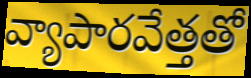
వ్యాపారవేత్తతో